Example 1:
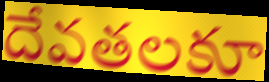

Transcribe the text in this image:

దేవతలకూ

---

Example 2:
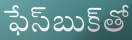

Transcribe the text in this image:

ఫేస్‌బుక్‌తో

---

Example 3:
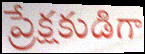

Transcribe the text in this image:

ప్రేక్షకుడిగా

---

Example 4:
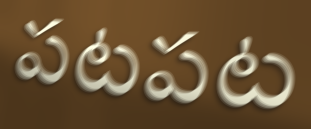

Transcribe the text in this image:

పటపట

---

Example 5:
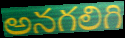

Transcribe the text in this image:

అనగలిగి